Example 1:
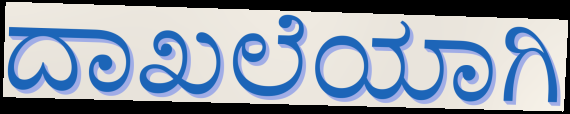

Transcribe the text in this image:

ದಾಖಲೆಯಾಗಿ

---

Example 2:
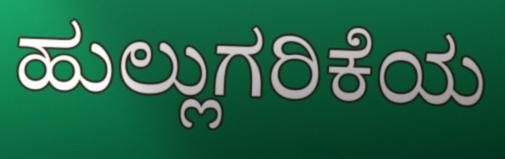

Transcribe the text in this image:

ಹುಲ್ಲುಗರಿಕೆಯ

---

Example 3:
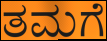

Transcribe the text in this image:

ತಮಗೆ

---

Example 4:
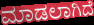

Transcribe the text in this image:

ಮಾಡಲಾಗಿದೆ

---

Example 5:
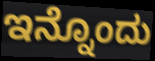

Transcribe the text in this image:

ಇನ್ನೊಂದು